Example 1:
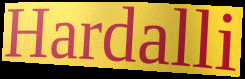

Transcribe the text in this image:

Hardalli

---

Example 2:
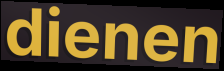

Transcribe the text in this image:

dienen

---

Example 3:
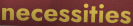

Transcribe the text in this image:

necessities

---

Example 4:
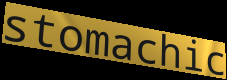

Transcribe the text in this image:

stomachic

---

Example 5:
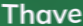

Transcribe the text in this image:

Thave